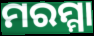
ମରମ୍ମା